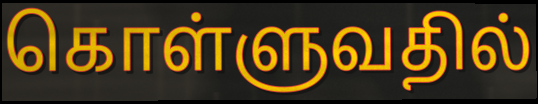
கொள்ளுவதில்